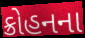
ક્રોહનના